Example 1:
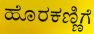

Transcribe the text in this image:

ಹೊರಕಣ್ಣಿಗೆ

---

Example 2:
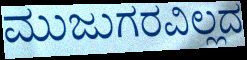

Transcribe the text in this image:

ಮುಜುಗರವಿಲ್ಲದ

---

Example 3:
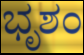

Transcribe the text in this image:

ಭೃಶಂ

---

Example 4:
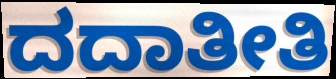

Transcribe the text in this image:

ದದಾತೀತಿ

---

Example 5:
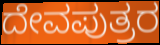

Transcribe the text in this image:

ದೇವಪುತ್ರರ